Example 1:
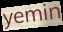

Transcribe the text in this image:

yemin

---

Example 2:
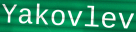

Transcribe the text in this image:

Yakovlev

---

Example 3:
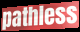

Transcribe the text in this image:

pathless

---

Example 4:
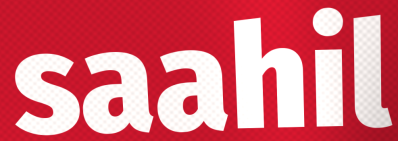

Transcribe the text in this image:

saahil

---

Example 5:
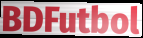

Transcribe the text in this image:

BDFutbol